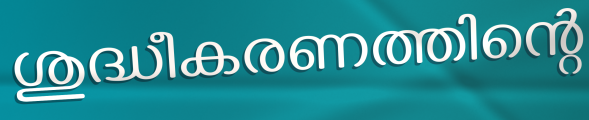
ശുദ്ധീകരണത്തിന്റെ